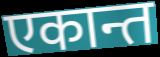
एकान्त